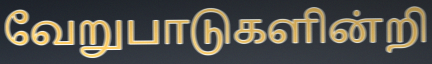
வேறுபாடுகளின்றி